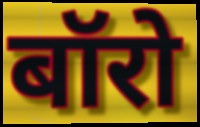
बॉरो